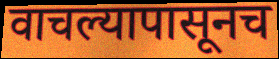
वाचल्यापासूनच